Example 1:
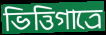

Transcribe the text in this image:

ভিত্তিগাত্রে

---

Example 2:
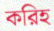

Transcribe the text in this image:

করিহ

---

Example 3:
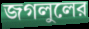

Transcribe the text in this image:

জগলুলের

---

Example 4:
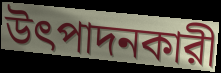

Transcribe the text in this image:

উৎপাদনকারী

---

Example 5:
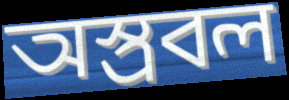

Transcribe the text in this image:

অস্ত্রবল